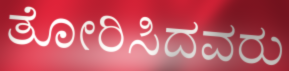
ತೋರಿಸಿದವರು